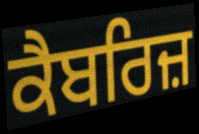
ਕੈਬਰਿਜ਼